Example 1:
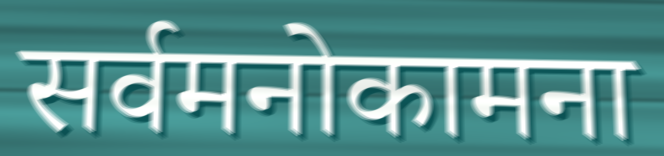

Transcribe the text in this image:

सर्वमनोकामना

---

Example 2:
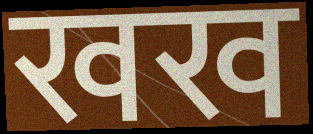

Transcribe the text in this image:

खख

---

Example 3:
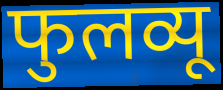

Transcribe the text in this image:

फुलव्यू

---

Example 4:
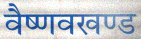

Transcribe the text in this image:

वैष्णवखण्ड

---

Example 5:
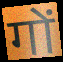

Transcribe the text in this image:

गों